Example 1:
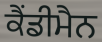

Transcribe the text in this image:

ਕੈਂਡੀਮੈਨ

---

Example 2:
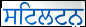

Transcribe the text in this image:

ਸਟਿਲਟਨ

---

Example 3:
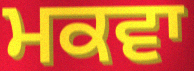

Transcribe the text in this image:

ਮਕਵਾ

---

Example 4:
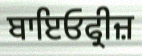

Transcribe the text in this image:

ਬਾਇਓਫ੍ਰੀਜ਼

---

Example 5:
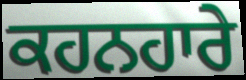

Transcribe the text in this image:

ਕਹਨਹਾਰੇ